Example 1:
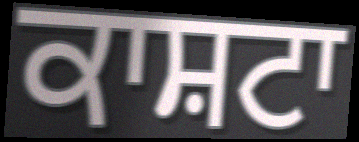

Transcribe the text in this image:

ਕਾਸ਼ਟਾ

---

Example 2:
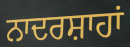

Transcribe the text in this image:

ਨਾਦਰਸ਼ਾਹਾਂ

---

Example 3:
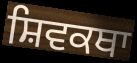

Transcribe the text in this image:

ਸ਼ਿਵਕਥਾ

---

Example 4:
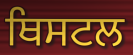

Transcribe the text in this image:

ਥਿਸਟਲ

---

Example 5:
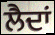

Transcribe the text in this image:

ਲੈਦਾਂ